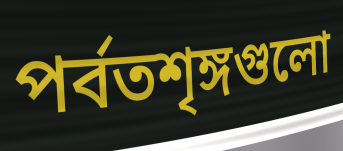
পর্বতশৃঙ্গগুলো